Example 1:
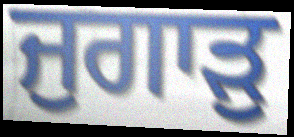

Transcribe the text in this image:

ਜੁਗਾੜੁ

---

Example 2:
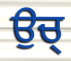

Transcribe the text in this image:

ਉਚ੍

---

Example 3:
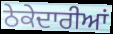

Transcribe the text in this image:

ਠੇਕੇਦਾਰੀਆਂ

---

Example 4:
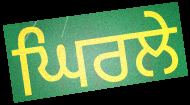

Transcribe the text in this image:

ਘਿਰਲੇ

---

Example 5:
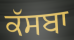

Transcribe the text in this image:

ਕੱਸਬਾ